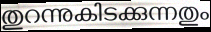
തുറന്നുകിടക്കുന്നതും